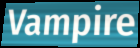
Vampire